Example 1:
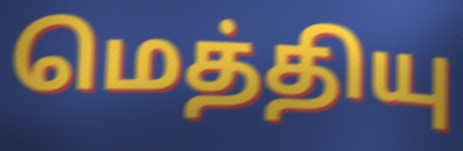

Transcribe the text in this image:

மெத்தியு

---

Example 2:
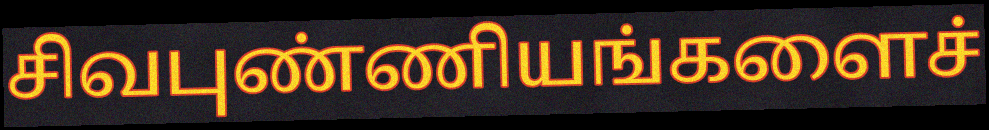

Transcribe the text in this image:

சிவபுண்ணியங்களைச்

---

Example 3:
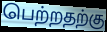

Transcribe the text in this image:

பெற்றதற்கு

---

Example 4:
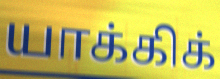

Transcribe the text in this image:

யாக்கிக்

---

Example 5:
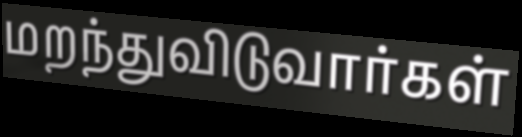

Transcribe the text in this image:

மறந்துவிடுவார்கள்